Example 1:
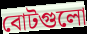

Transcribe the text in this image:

বোটগুলো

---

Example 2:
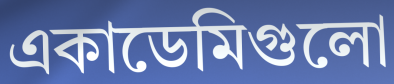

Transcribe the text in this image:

একাডেমিগুলো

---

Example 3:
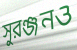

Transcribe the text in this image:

সুরঞ্জনও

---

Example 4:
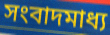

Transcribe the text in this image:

সংবাদমাধ্য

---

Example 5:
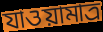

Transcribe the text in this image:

যাওয়ামাত্র